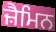
ਜ਼ੈਮਿਨ